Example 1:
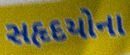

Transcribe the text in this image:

સહૃદયોના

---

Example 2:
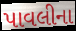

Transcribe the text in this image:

પાવલીના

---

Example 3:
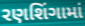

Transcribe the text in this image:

રણશિંગામાં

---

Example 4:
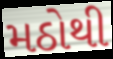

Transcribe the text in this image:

મઠોથી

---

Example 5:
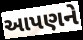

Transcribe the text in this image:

આપણને